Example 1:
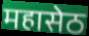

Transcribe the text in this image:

महासेठ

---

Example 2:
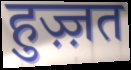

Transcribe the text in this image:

हुज़्ज़त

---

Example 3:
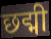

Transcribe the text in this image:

छद्मी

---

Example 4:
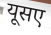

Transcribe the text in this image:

यूसए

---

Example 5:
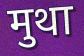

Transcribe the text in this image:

मुथा